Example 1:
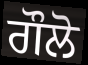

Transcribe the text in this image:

ਗੌਲੋ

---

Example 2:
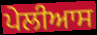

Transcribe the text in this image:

ਪੇਲੀਆਸ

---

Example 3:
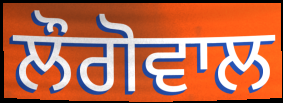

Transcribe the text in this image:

ਲੌਗੋਵਾਲ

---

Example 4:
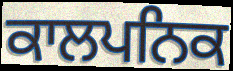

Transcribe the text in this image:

ਕਾਲਪਨਿਕ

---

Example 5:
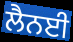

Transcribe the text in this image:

ਲੈਨਈ